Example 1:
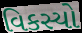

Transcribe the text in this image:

વિકસ્યો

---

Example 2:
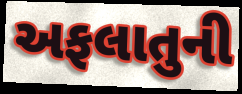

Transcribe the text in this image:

અફલાતુની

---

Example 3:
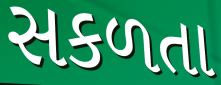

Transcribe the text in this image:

સકળતા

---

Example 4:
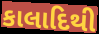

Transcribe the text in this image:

કાલાદિથી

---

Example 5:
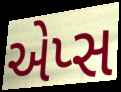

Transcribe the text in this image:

એપ્સ